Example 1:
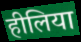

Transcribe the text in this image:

हीलिया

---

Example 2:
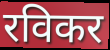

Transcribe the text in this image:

रविकर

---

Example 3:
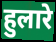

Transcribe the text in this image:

हुलारे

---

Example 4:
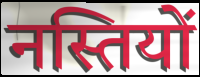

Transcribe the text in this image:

नस्तियों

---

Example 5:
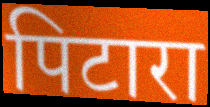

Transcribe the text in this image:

पिटारा